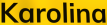
Karolina